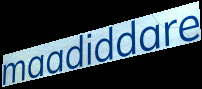
maadiddare